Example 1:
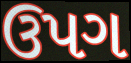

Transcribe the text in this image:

ઉપગ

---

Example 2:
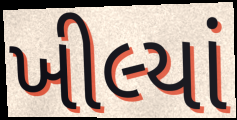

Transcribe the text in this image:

ખીલ્યાં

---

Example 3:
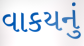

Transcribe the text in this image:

વાકયનું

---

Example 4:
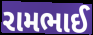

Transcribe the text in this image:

રામભાઈ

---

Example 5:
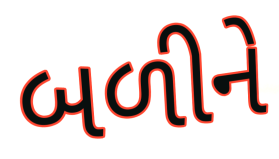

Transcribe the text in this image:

બળીને